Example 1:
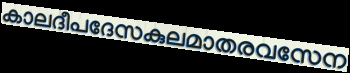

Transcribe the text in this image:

കാലദീപദേസകുലമാതരവസേന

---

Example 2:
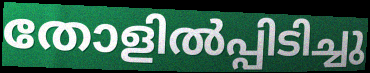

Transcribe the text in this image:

തോളിൽപ്പിടിച്ചു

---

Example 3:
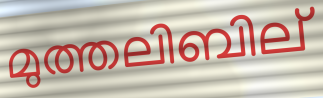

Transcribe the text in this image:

മുത്തലിബില്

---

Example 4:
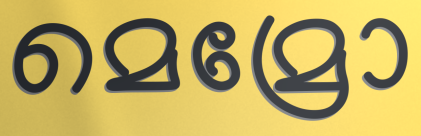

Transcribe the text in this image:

മെമ്രോ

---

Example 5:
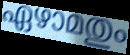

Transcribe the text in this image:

ഏഴാമതും